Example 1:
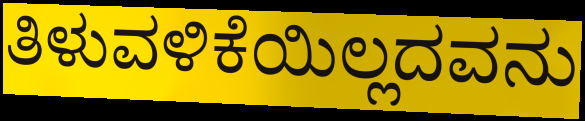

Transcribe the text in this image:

ತಿಳುವಳಿಕೆಯಿಲ್ಲದವನು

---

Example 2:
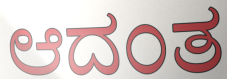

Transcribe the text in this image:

ಆದಂತ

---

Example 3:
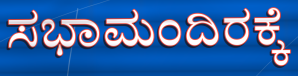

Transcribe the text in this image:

ಸಭಾಮಂದಿರಕ್ಕೆ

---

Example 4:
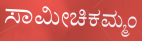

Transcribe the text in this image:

ಸಾಮೀಚಿಕಮ್ಮಂ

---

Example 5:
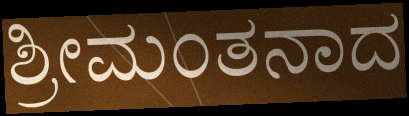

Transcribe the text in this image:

ಶ್ರೀಮಂತನಾದ